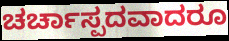
ಚರ್ಚಾಸ್ಪದವಾದರೂ